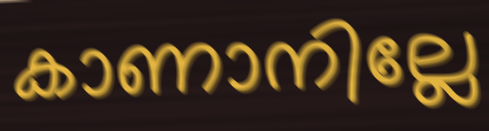
കാണാനില്ലേ